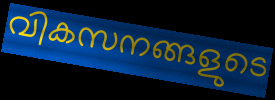
വികസനങ്ങളുടെ